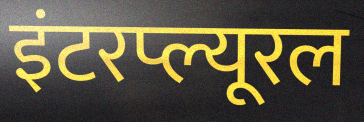
इंटरप्ल्यूरल